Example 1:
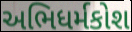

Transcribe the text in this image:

અભિધર્મકોશ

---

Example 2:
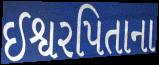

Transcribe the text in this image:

ઈશ્વરપિતાના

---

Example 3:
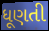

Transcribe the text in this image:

ધૂણતી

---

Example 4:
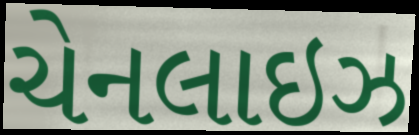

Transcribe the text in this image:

ચેનલાઇઝ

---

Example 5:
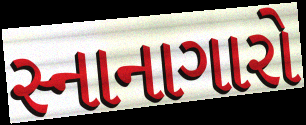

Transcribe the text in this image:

સ્નાનાગારો